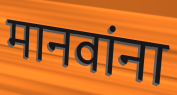
मानवांना